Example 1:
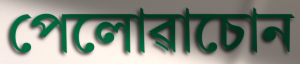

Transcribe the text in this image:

পেলোৱাচোন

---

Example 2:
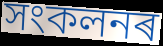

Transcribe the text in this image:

সংকলনৰ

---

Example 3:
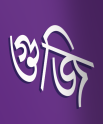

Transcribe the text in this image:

গুজি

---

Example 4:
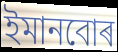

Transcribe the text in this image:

ইমানবোৰ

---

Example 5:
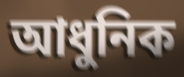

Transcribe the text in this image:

আধুনিক